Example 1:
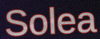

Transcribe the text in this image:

Solea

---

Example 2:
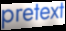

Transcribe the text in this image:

pretext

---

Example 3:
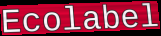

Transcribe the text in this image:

Ecolabel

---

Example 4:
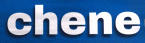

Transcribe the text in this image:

chene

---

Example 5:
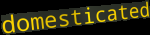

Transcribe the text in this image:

domesticated